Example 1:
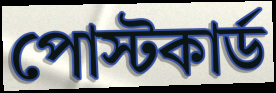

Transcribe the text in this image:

পোস্টকার্ড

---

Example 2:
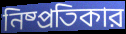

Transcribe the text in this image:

নিষ্প্রতিকার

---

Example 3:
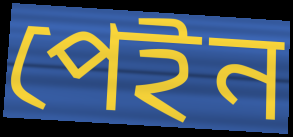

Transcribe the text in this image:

পেইন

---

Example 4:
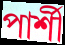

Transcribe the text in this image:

পার্শী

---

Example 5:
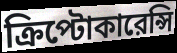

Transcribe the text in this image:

ক্রিপ্টোকারেন্সি